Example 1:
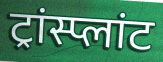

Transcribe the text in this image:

ट्रांस्प्लांट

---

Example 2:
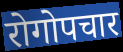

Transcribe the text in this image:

रोगोपचार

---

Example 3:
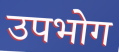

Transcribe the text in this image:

उपभोग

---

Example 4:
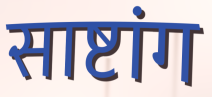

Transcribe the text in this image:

साष्टांग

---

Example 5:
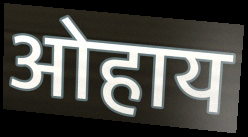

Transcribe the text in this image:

ओहाय